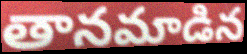
తానమాడిన